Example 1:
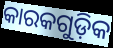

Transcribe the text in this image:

କାରକଗୁଡ଼ିକ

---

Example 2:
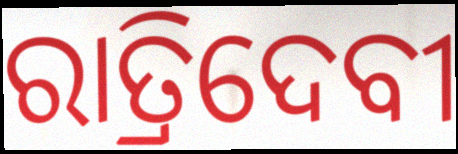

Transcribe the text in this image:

ରାତ୍ରିଦେବୀ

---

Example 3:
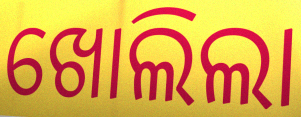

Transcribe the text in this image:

ଖୋଲିଲା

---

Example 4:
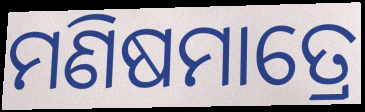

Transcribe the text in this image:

ମଣିଷମାତ୍ରେ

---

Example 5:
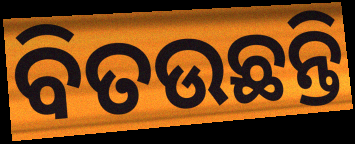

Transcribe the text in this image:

ବିତଉଛନ୍ତି